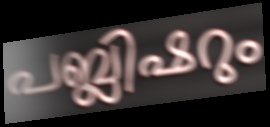
പബ്ലിഷറും